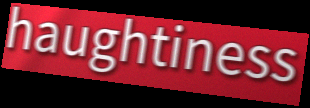
haughtiness